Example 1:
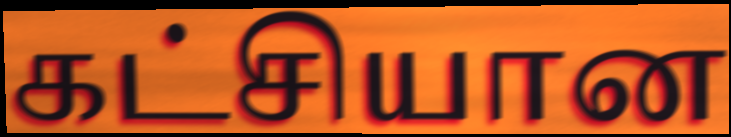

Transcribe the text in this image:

கட்சியான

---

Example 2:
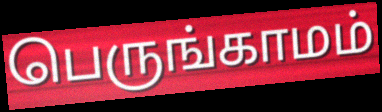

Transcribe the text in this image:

பெருங்காமம்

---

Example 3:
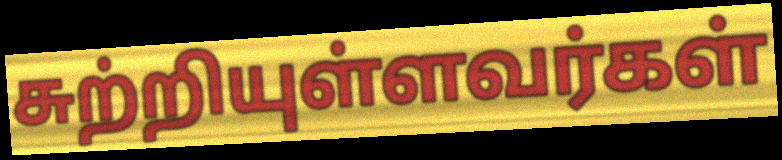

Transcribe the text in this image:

சுற்றியுள்ளவர்கள்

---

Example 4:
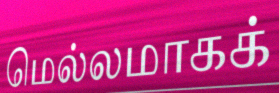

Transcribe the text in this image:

மெல்லமாகக்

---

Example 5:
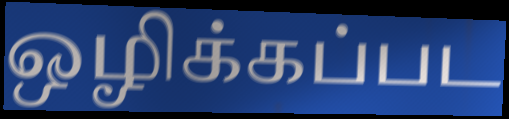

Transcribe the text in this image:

ஒழிக்கப்பட